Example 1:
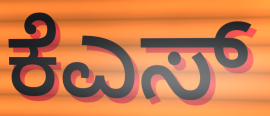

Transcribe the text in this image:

ಕೆಎಸ್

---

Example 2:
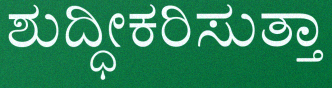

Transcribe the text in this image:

ಶುದ್ಧೀಕರಿಸುತ್ತಾ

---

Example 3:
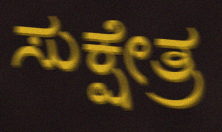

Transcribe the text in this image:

ಸುಕ್ಷೇತ್ರ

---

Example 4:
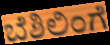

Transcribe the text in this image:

ಬೆಶಿಲಿಂಗೆ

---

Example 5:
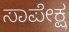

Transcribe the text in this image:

ಸಾಪೇಕ್ಷ